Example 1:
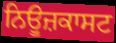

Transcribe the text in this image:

ਨਿਊਜ਼ਕਾਸਟ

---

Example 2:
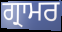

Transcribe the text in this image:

ਗ੍ਰਾਮਰ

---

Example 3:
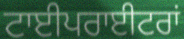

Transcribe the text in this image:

ਟਾਈਪਰਾਈਟਰਾਂ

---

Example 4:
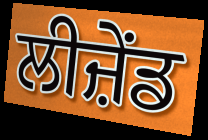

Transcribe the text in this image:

ਲੀਜ਼ੇਂਡ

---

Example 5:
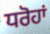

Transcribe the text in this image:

ਧਰੋਹਾਂ